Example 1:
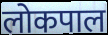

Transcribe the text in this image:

लोकपाल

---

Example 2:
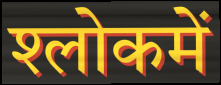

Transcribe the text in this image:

श्लोकमें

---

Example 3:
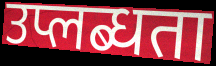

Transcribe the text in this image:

उप्लब्धता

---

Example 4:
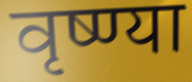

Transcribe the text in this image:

वृष्ण्या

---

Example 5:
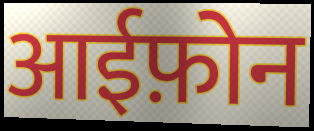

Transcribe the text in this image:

आईफ़ोन